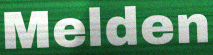
Melden